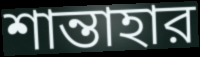
শান্তাহার